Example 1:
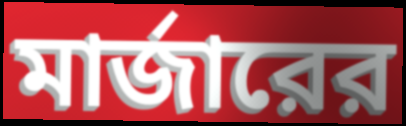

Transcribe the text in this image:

মার্জারের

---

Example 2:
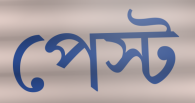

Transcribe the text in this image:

পেস্ট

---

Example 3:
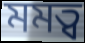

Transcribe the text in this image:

মমত্ব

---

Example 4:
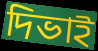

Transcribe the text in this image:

দিভাই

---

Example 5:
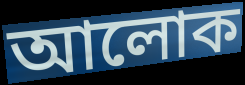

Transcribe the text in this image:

আলোক